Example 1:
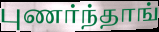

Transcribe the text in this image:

புணர்ந்தாங்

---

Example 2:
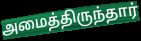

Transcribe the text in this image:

அமைத்திருந்தார்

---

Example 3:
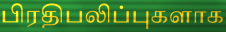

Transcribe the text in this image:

பிரதிபலிப்புகளாக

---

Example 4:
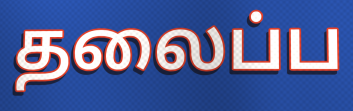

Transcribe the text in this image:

தலைப்ப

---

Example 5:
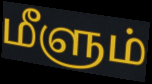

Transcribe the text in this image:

மீளும்